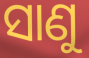
ସାଣୁ